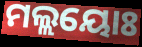
ମଲ୍ଲୟୋଃ